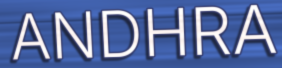
ANDHRA